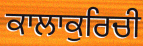
ਕਾਲਾਕੁਰਿਚੀ